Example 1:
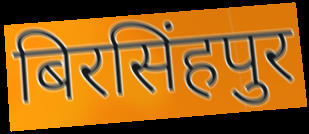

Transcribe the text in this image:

बिरसिंहपुर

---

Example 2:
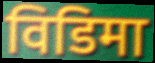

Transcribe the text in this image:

विडिमा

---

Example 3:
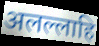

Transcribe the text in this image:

अलल्लाहि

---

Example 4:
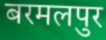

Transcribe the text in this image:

बरमलपुर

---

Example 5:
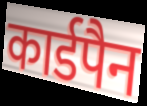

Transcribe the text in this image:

कार्डपैन